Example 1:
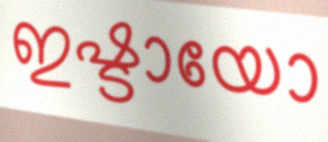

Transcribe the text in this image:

ഇഷ്ടായോ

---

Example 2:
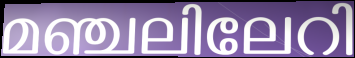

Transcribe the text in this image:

മഞ്ചലിലേറി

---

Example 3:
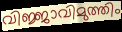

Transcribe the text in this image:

വിജ്ജാവിമുത്തിം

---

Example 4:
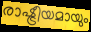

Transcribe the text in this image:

രാഷ്ട്രീയമായും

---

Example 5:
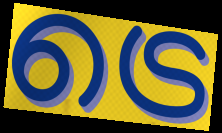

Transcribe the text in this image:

ട്രെ